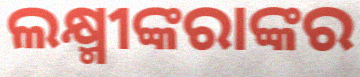
ଲକ୍ଷ୍ମୀଙ୍କରାଙ୍କର